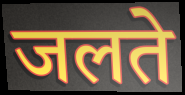
जलते